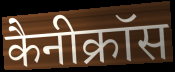
कैनीक्रॉस